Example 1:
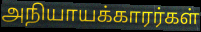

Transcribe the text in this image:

அநியாயக்காரர்கள்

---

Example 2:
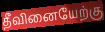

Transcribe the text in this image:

தீவினையேற்கு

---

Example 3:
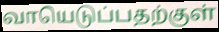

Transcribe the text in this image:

வாயெடுப்பதற்குள்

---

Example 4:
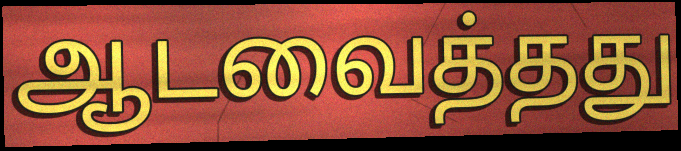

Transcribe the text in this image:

ஆடவைத்தது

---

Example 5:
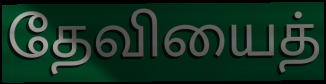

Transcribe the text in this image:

தேவியைத்